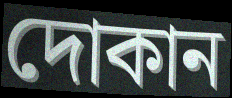
দোকান